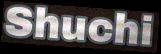
Shuchi